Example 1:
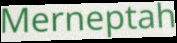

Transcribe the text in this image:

Merneptah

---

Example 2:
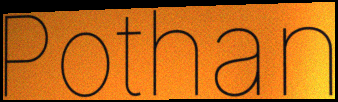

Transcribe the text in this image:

Pothan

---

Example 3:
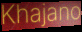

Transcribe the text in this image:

Khajano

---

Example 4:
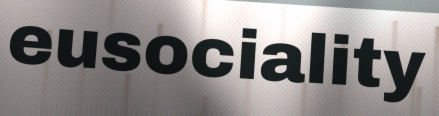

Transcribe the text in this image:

eusociality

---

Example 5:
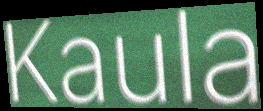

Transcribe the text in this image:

Kaula